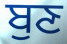
ਬੁਣ